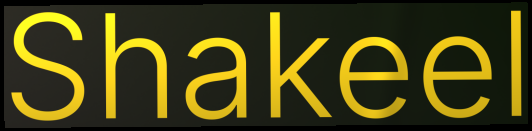
Shakeel